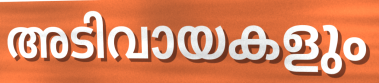
അടിവായകളും